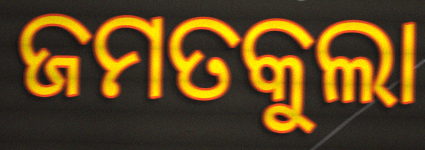
ଜମତକୁଲା